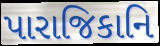
પારાજિકાનિ